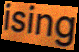
ising